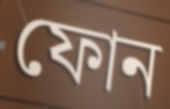
ফোন